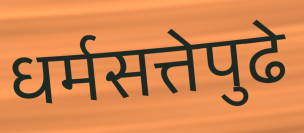
धर्मसत्तेपुढे